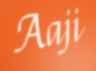
Aaji